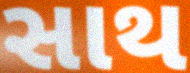
સાથ